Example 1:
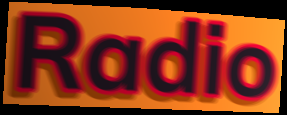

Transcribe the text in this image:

Radio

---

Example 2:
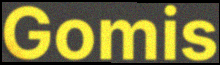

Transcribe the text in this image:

Gomis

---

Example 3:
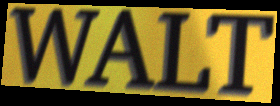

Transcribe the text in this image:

WALT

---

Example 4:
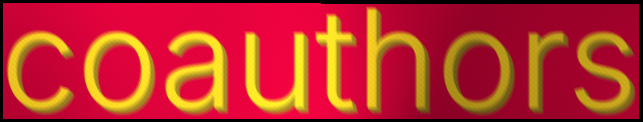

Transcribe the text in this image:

coauthors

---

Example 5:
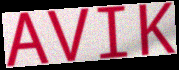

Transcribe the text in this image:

AVIK